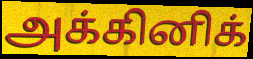
அக்கினிக்